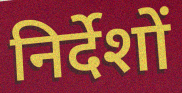
निर्देशों